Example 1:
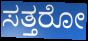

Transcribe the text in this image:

ಸತ್ತರೋ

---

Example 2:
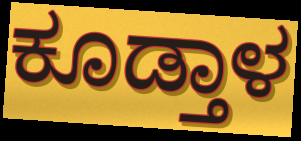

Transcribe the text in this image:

ಕೂಡ್ತಾಳ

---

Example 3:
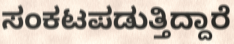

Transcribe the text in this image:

ಸಂಕಟಪಡುತ್ತಿದ್ದಾರೆ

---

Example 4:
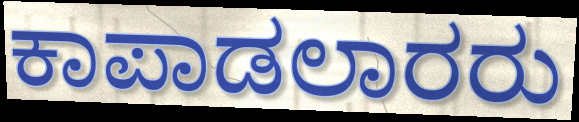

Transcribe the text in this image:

ಕಾಪಾಡಲಾರರು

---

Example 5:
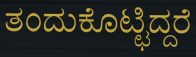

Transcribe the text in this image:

ತಂದುಕೊಟ್ಟಿದ್ದರೆ